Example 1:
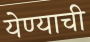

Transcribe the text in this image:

येण्याची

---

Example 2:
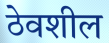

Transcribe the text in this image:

ठेवशील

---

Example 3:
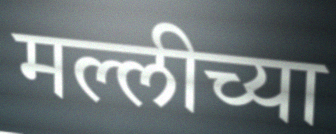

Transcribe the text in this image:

मल्लीच्या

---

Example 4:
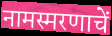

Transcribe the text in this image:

नामस्मरणाचें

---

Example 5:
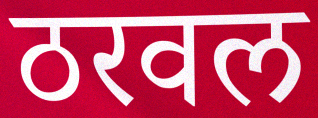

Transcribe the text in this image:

ठरवल